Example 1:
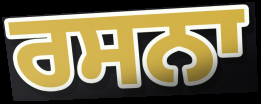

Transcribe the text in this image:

ਰਸਨਾ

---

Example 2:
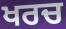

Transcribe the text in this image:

ਖਰਚ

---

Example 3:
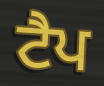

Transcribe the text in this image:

ਟੈਪ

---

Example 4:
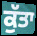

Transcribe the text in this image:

ਕੁੱਤਾ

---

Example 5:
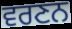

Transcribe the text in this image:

ਵਰਣਨ